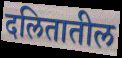
दलितातील